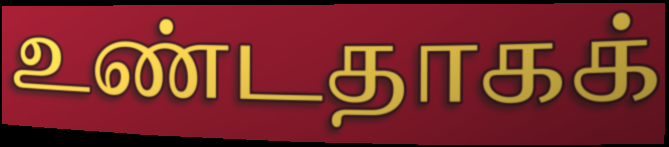
உண்டதாகக்